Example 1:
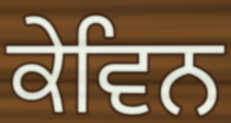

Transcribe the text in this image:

ਕੇਵਿਨ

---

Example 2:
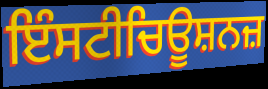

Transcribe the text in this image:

ਇੰਸਟੀਚਿਊਸ਼ਨਜ਼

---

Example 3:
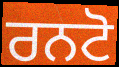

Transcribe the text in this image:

ਰਨਟੋ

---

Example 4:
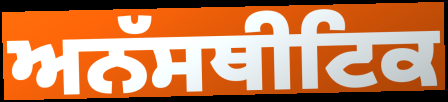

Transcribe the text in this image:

ਅਨੱਸਥੀਟਿਕ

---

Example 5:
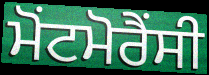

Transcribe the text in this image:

ਮੋਂਟਮੋਰੈਂਸੀ